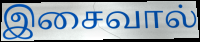
இசைவால்